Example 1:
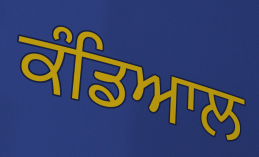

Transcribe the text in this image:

ਕੰਡਿਆਲ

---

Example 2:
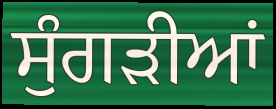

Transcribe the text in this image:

ਸੁੰਗੜੀਆਂ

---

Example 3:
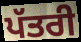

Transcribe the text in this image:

ਪੱਤਰੀ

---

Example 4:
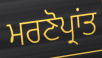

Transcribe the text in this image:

ਮਰਣੋਪ੍ਰਾਂਤ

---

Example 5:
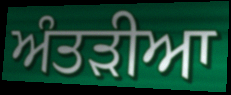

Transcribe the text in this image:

ਅੰਤੜੀਆ